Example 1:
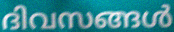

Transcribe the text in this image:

ദിവസങ്ങൾ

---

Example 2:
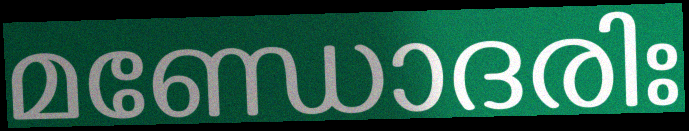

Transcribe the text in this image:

മണ്ഡോദരിഃ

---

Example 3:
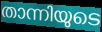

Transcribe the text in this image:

താന്നിയുടെ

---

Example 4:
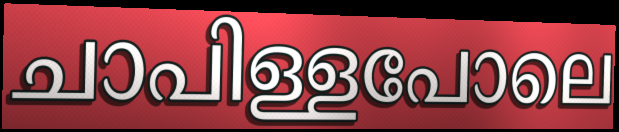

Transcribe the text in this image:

ചാപിള്ളപോലെ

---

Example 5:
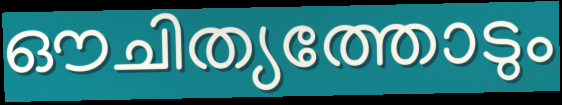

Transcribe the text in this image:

ഔചിത്യത്തോടും